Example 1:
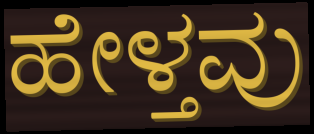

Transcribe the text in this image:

ಹೇಳ್ತವು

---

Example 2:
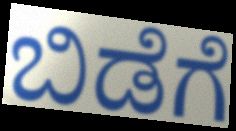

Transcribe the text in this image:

ಬಿಡೆಗೆ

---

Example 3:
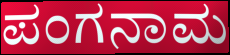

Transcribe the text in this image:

ಪಂಗನಾಮ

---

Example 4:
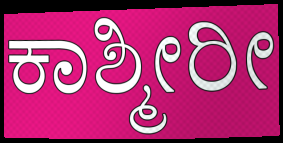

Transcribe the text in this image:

ಕಾಶ್ಮೀರೀ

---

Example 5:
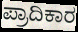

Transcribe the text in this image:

ಪ್ರಾದಿಕಾರ